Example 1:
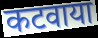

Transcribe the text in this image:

कटवाया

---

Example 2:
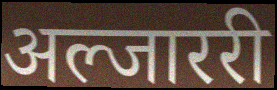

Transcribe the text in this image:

अल्जाररी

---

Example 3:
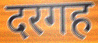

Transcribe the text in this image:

दरगह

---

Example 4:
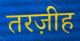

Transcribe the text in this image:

तरज़ीह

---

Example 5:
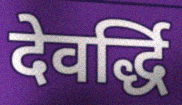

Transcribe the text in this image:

देवर्द्धि